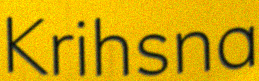
Krihsna